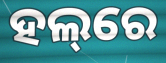
ହଲ୍‌ରେ